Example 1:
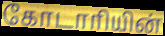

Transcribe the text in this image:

கோடாரியின்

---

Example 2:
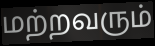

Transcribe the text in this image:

மற்றவரும்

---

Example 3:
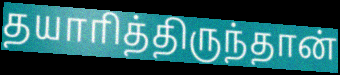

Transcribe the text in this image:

தயாரித்திருந்தான்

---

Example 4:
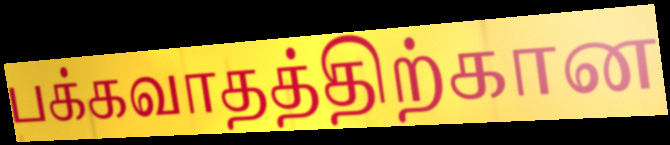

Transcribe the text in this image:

பக்கவாதத்திற்கான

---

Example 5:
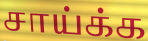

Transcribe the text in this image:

சாய்க்க